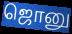
ஜொனு